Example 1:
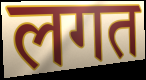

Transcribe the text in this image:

लगत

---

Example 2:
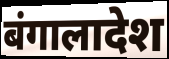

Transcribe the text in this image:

बंगालादेश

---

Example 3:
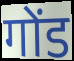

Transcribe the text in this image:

गोंड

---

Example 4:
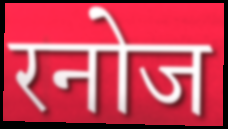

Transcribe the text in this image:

रनोज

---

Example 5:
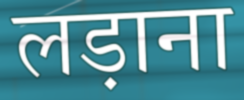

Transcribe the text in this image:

लड़ाना